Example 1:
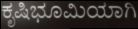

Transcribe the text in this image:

ಕೃಷಿಭೂಮಿಯಾಗಿ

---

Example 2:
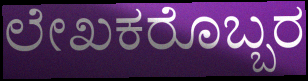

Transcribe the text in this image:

ಲೇಖಕರೊಬ್ಬರ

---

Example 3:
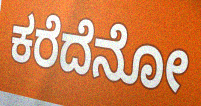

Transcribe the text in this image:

ಕರೆದೆನೋ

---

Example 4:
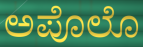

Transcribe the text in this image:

ಅಪೊಲೊ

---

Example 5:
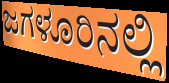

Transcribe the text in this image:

ಜಗಳೂರಿನಲ್ಲಿ